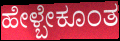
ಹೇಳ್ಬೇಕೂಂತ